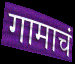
गामाचं